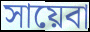
সায়েবা